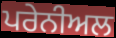
ਪਰੇਨੀਅਲ